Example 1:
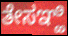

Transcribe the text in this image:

ತೇಸಞ್ಹಿ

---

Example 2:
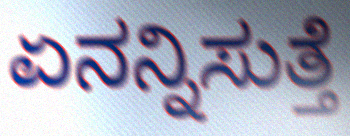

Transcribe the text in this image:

ಏನನ್ನಿಸುತ್ತೆ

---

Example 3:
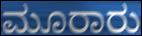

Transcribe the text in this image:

ಮೂರಾರು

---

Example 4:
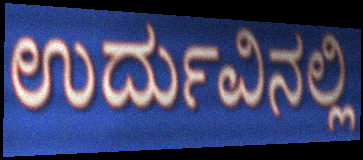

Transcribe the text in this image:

ಉರ್ದುವಿನಲ್ಲಿ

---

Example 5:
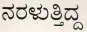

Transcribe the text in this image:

ನರಳುತ್ತಿದ್ದ